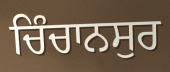
ਚਿੰਚਾਨਸੁਰ